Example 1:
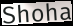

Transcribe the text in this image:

Shoha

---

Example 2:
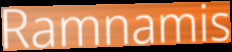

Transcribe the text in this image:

Ramnamis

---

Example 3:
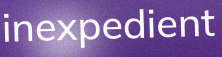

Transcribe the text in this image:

inexpedient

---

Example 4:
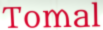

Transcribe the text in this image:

Tomal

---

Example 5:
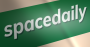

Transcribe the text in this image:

spacedaily